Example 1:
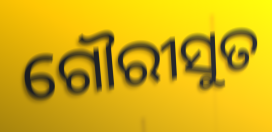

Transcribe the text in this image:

ଗୌରୀସୁତ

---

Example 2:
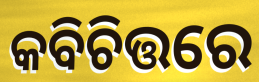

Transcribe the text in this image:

କବିଚିତ୍ତରେ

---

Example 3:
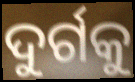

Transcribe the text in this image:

ଦୁର୍ଗକୁ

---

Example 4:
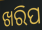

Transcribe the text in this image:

ଖରିପ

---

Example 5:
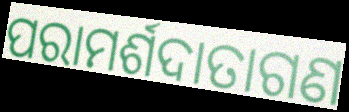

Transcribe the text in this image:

ପରାମର୍ଶଦାତାଗଣ